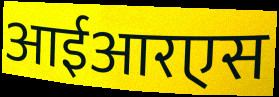
आईआरएस